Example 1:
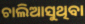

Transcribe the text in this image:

ଚାଲିଆସୁଥିବା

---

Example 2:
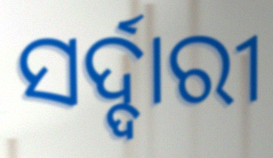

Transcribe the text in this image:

ସର୍ଦ୍ଦାରୀ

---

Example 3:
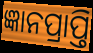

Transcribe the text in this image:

ଜ୍ଞାନପ୍ରାପ୍ତି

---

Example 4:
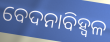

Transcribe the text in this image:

ବେଦନାବିହ୍ୱଳ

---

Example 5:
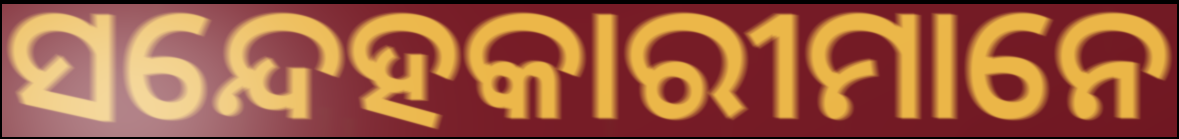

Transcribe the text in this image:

ସନ୍ଦେହକାରୀମାନେ